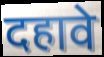
दहावे